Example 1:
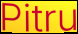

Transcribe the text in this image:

Pitru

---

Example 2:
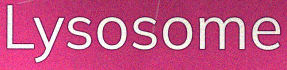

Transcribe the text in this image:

Lysosome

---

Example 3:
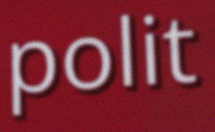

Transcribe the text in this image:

polit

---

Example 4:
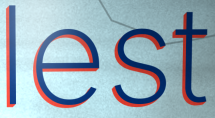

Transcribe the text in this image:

lest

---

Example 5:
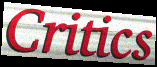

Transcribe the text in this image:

Critics